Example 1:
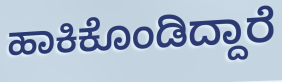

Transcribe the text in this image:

ಹಾಕಿಕೊಂಡಿದ್ದಾರೆ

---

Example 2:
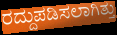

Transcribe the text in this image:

ರದ್ದುಪಡಿಸಲಾಗಿತ್ತು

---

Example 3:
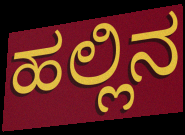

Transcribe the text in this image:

ಹಲ್ಲಿನ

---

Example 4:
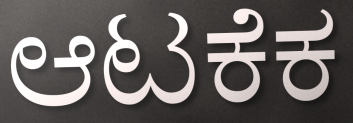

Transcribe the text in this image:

ಆಟಕೆಕ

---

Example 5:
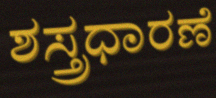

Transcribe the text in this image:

ಶಸ್ತ್ರಧಾರಣೆ